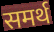
समर्थ